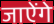
जाऐंगे